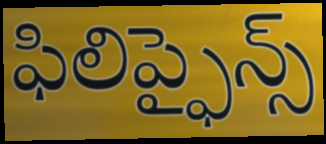
ఫిలిప్ఫైన్స్